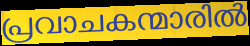
പ്രവാചകന്മാരിൽ